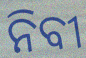
ନିବୀ